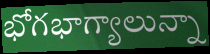
భోగభాగ్యాలున్నా